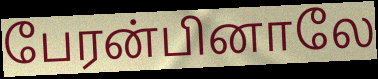
பேரன்பினாலே